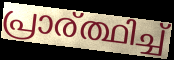
പ്രാര്ത്ഥിച്ച്